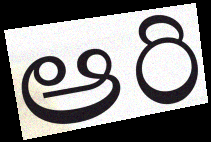
ఆరి